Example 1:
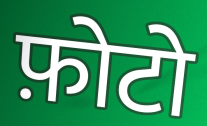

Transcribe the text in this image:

फ़ोटो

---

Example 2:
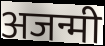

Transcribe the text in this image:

अजन्मी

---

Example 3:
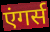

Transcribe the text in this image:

एंगर्स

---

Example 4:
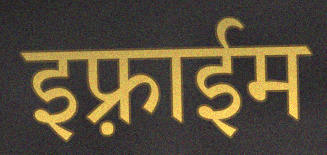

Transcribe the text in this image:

इफ़्राईम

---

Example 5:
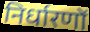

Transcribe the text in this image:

निर्धारणों